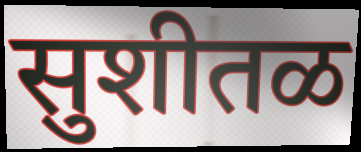
सुशीतळ